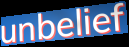
unbelief